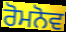
ਰੋਮਨੋਵ